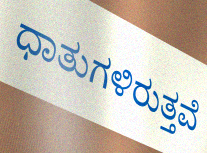
ಧಾತುಗಳಿರುತ್ತವೆ